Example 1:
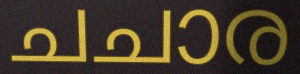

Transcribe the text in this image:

ചചാര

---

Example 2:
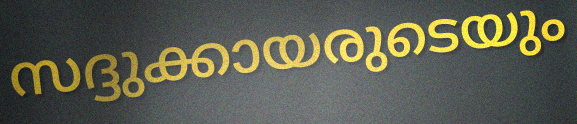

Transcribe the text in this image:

സദ്ദുക്കായരുടെയും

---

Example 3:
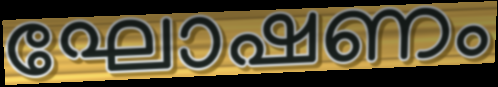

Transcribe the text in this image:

ഘോഷണം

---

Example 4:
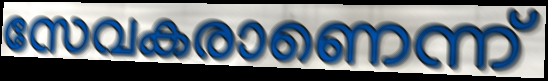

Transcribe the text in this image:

സേവകരാണെന്ന്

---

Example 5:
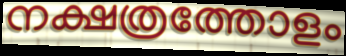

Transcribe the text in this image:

നക്ഷത്രത്തോളം